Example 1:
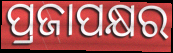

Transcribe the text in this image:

ପ୍ରଜାପକ୍ଷର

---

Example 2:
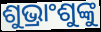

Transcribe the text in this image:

ଶୁଭ୍ରାଂଶୁଙ୍କୁ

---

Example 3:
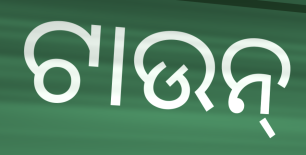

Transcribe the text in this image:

ଟାଉନ୍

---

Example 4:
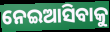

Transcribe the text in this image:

ନେଇଆସିବାକୁ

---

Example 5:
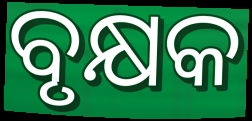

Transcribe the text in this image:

ବୃକ୍ଷକ